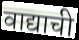
वाद्याची